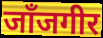
जाँजगीर